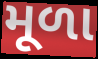
મૂળા